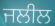
ਜਲੀਲ